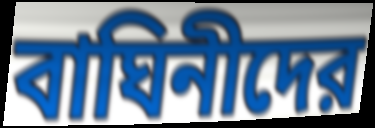
বাঘিনীদের